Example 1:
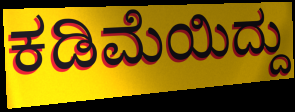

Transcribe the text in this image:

ಕಡಿಮೆಯಿದ್ದು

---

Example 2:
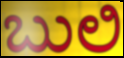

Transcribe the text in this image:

ಬುಲಿ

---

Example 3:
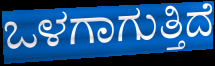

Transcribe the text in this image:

ಒಳಗಾಗುತ್ತಿದೆ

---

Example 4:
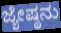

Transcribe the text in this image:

ಜ್ಯೇಷ್ಠನು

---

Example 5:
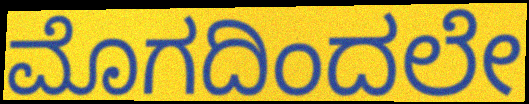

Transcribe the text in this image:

ಮೊಗದಿಂದಲೇ